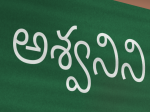
అశ్వనిని